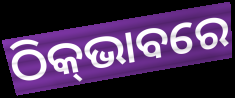
ଠିକ୍‌ଭାବରେ